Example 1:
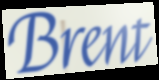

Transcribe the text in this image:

Brent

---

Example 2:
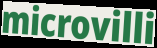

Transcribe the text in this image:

microvilli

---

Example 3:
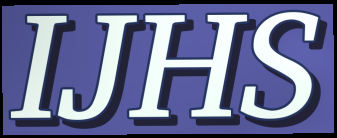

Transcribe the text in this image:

IJHS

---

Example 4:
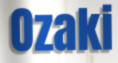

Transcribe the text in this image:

Ozaki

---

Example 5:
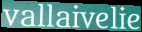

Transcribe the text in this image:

vallaivelie